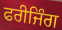
ਫਰੀਜਿੰਗ